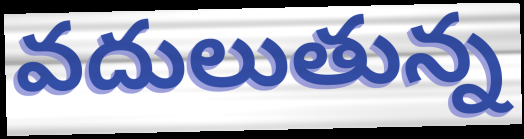
వదులుతున్న